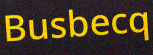
Busbecq